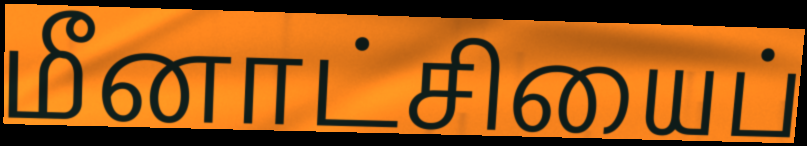
மீனாட்சியைப்